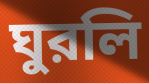
ঘুরলি